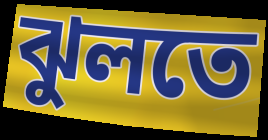
ঝুলতে